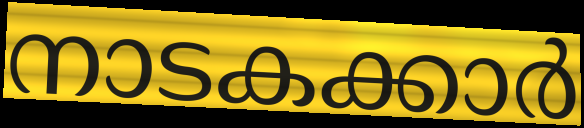
നാടകക്കാർ